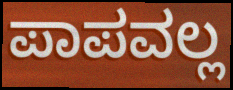
ಪಾಪವಲ್ಲ